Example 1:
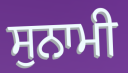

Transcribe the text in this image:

ਸੁਨਾਮੀ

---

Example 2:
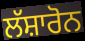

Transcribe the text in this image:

ਲੱਸ਼ਾਰੋਨ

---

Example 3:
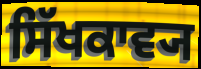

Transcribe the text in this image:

ਸਿੱਖਕਾਵ੍ਯ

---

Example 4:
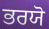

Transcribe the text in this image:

ਭਰਯੋ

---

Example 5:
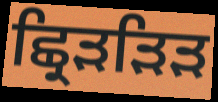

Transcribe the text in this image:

ਛ੍ਰਿੜੜਿੜ